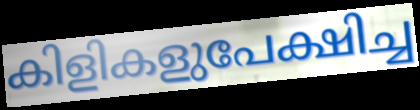
കിളികളുപേക്ഷിച്ച